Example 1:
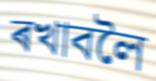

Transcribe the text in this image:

ৰখাবলৈ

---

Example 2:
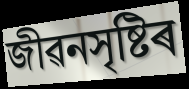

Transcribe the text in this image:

জীৱনসৃষ্টিৰ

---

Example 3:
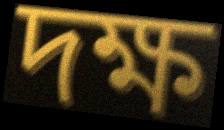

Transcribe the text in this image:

দক্ষ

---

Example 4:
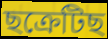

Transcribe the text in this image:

ছক্ৰেটিছ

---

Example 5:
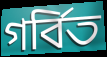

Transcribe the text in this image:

গৰ্বিত